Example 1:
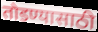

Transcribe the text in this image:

तोडण्यासाठी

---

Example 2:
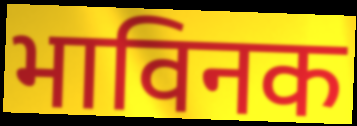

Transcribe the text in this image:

भाविनक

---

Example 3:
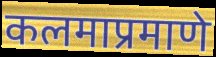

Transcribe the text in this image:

कलमाप्रमाणे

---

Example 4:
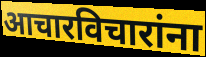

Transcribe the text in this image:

आचारविचारांना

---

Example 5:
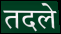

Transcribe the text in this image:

तदले